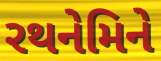
રથનેમિને